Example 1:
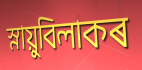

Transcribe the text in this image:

স্নায়ুবিলাকৰ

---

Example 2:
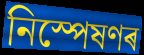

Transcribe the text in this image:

নিস্পেষণৰ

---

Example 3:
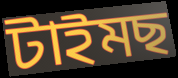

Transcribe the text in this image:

টাইমছ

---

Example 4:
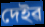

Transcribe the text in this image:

দেইৱ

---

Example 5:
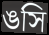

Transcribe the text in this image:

ঙসি